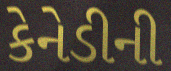
કેનેડીની